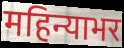
महिन्याभर